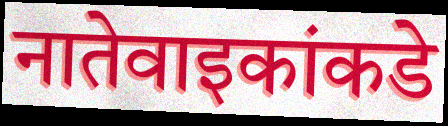
नातेवाइकांकडे